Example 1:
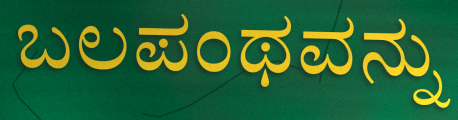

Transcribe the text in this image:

ಬಲಪಂಥವನ್ನು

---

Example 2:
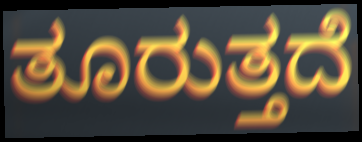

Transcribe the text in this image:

ತೂರುತ್ತದೆ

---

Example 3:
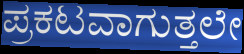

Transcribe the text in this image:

ಪ್ರಕಟವಾಗುತ್ತಲೇ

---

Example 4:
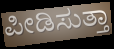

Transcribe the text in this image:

ಪೀಡಿಸುತ್ತಾ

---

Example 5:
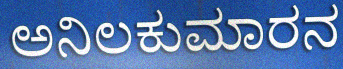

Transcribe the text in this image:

ಅನಿಲಕುಮಾರನ